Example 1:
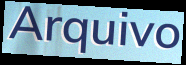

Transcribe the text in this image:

Arquivo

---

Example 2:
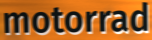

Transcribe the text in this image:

motorrad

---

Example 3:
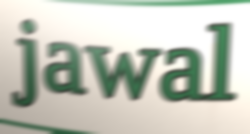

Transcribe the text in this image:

jawal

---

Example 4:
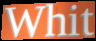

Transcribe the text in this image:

Whit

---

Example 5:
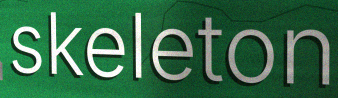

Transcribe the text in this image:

skeleton